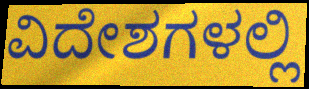
ವಿದೇಶಗಳಲ್ಲಿ